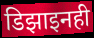
डिझाइनही